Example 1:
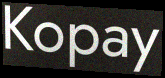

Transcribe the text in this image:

Kopay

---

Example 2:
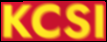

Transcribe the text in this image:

KCSI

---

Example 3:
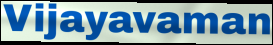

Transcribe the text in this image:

Vijayavaman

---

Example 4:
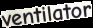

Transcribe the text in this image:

ventilator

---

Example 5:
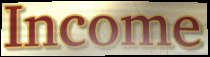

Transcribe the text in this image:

Income